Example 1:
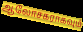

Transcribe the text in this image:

ஆலோசகராகவும்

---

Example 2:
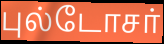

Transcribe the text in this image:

புல்டோசர்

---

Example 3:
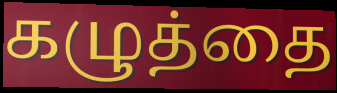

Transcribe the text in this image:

கழுத்தை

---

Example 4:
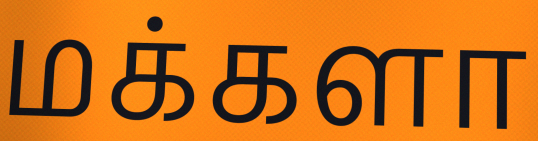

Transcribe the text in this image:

மக்களா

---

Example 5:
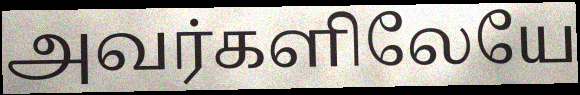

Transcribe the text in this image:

அவர்களிலேயே